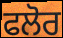
ਫਲੋਰ